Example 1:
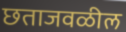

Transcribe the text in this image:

छताजवळील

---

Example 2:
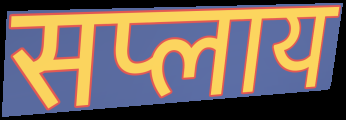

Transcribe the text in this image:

सप्लाय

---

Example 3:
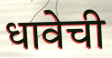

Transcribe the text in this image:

धावेची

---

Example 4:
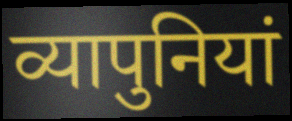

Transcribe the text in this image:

व्यापुनियां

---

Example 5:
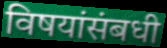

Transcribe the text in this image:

विषयांसंबधी